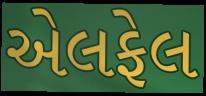
એલફેલ